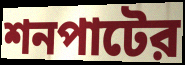
শনপাটের